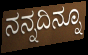
ನನ್ನದಿನ್ನೂ